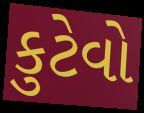
કુટેવો